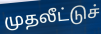
முதலீட்டுச்